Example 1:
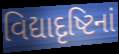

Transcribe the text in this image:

વિદ્યાદૃષ્ટિનાં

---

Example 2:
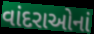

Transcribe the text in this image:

વાંદરાઓનાં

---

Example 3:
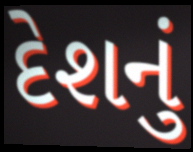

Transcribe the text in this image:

દેશનું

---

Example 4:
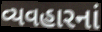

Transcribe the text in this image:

વ્યવહારનાં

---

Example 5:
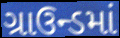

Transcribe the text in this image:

ગ્રાઉન્ડમાં